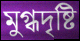
মুগ্ধদৃষ্টি